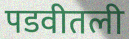
पडवीतली